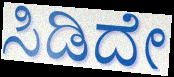
ಸಿಡಿದೇ